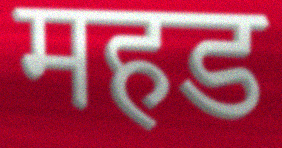
महड